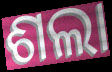
ଶଲା